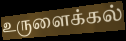
உருளைக்கல்